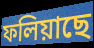
ফলিয়াছে